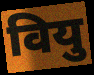
वियु